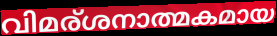
വിമര്ശനാത്മകമായ